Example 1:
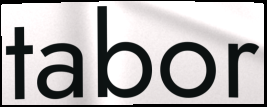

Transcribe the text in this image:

tabor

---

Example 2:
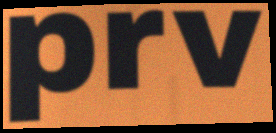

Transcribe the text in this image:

prv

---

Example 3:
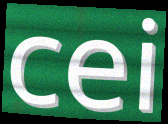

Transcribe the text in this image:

cei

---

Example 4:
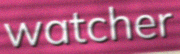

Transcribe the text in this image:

watcher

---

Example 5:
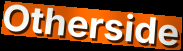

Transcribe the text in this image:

Otherside